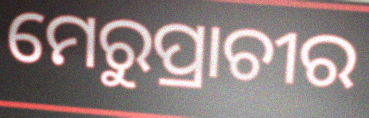
ମେରୁପ୍ରାଚୀର